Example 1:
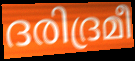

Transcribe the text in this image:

ദരിദ്രമീ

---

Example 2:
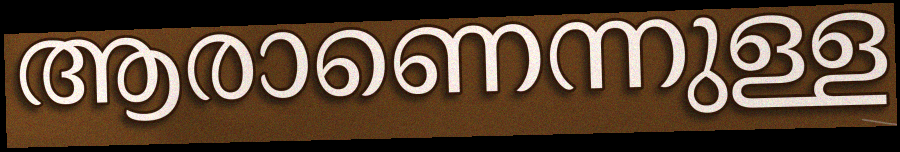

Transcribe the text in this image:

ആരാണെന്നുള്ള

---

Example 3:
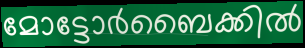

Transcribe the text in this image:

മോട്ടോർബൈക്കിൽ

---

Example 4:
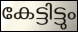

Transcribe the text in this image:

കേട്ടിട്ടും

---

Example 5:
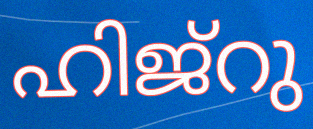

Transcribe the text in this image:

ഹിജ്റു